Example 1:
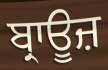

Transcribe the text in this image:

ਬ੍ਰਾਊਜ਼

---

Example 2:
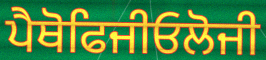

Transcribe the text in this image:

ਪੈਥੋਫਿਜੀਓਲੋਜੀ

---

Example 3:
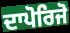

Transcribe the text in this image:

ਦਾਪੋਰਿਜੋ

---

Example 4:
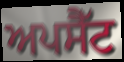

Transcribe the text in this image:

ਅਪਸੈੱਟ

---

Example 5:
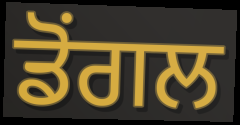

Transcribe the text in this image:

ਡੋਂਗਲ